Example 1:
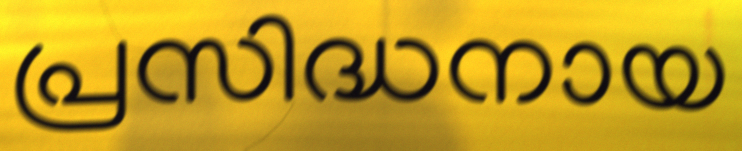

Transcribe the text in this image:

പ്രസിദ്ധനായ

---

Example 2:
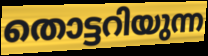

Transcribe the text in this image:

തൊട്ടറിയുന്ന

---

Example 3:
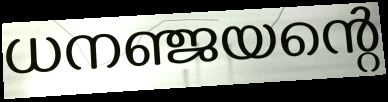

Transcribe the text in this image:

ധനഞ്ജയന്റെ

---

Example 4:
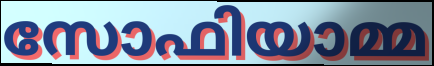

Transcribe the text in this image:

സോഫിയാമ്മ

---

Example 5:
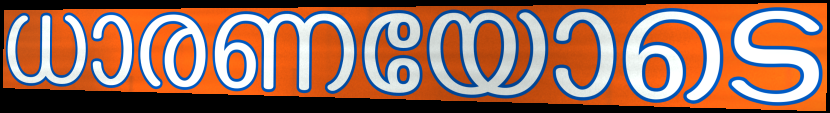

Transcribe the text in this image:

ധാരണയോടെ